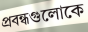
প্রবন্ধগুলোকে